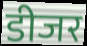
डीजर